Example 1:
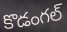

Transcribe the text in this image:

కొడంగల్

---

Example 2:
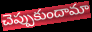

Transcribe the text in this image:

చెప్పుకుందామా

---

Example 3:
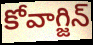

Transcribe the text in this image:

కోవాగ్జిన్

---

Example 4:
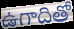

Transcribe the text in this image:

ఉగాదితో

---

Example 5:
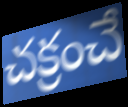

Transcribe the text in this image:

చక్రంచే